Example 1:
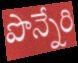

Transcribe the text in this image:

పొన్నేరి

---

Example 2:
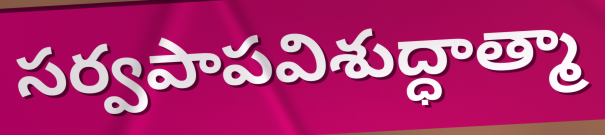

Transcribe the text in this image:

సర్వపాపవిశుద్ధాత్మా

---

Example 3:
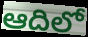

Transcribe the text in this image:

ఆదిలో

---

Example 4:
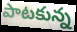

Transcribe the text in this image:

పాటకున్న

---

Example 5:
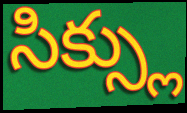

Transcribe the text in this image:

సిక్స్లు